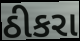
ઠીકરા